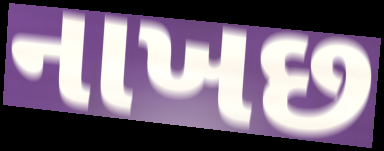
નાખછ